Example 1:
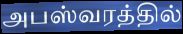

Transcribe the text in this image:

அபஸ்வரத்தில்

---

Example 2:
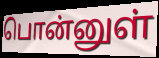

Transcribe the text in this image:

பொன்னுள்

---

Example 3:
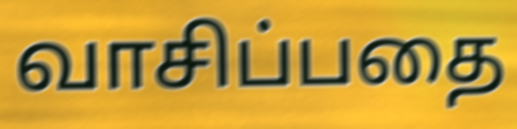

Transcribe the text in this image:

வாசிப்பதை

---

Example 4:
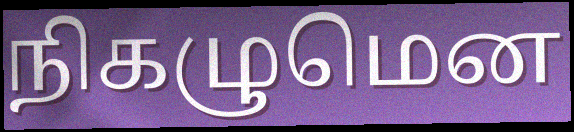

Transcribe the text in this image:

நிகழுமென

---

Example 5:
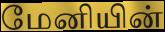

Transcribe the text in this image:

மேனியின்